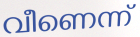
വീണെന്ന്